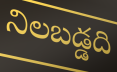
నిలబడ్డది